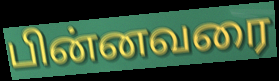
பின்னவரை